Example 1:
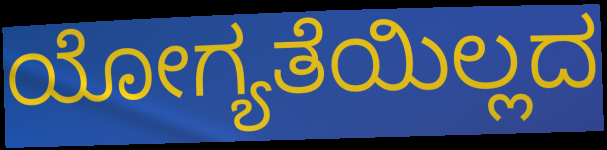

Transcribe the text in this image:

ಯೋಗ್ಯತೆಯಿಲ್ಲದ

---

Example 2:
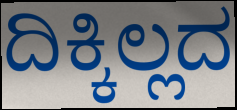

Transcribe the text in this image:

ದಿಕ್ಕಿಲ್ಲದ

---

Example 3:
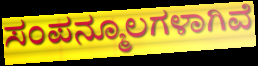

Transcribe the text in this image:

ಸಂಪನ್ಮೂಲಗಳಾಗಿವೆ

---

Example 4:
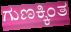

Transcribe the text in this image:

ಗುಣಕ್ಕಿಂತ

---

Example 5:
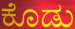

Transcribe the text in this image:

ಕೊಡು